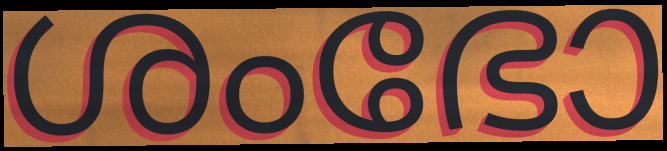
ശംഭോ